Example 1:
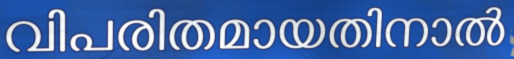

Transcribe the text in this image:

വിപരിതമായതിനാൽ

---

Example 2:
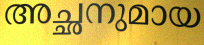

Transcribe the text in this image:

അച്ഛനുമായ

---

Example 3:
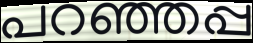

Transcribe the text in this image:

പറഞ്ഞപ്പ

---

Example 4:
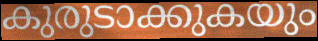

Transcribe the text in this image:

കുരുടാക്കുകയും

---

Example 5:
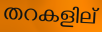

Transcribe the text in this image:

തറകളില്